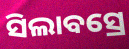
ସିଲାବସ୍ରେ